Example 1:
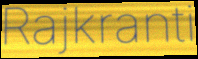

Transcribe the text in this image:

Rajkranti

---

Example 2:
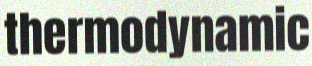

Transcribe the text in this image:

thermodynamic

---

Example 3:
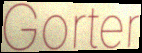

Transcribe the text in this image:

Gorter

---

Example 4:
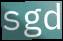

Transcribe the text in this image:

sgd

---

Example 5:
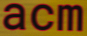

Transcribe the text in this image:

acm